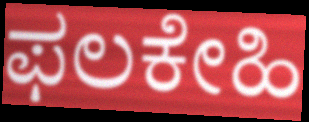
ಫಲಕೇಹಿ